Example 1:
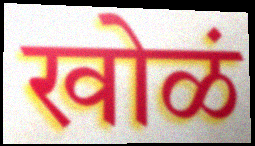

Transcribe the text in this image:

खोळं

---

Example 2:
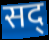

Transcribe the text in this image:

सद्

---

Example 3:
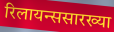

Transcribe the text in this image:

रिलायन्ससारख्या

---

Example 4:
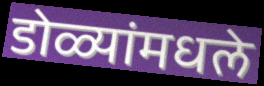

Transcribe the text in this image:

डोळ्यांमधले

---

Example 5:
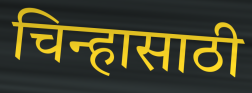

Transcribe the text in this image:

चिन्हासाठी